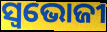
ସ୍ଵଭୋଜୀ